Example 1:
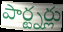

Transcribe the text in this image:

పార్ట్నర్లు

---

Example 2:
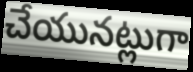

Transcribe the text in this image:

చేయునట్లుగా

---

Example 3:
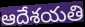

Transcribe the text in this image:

ఆదేశయతి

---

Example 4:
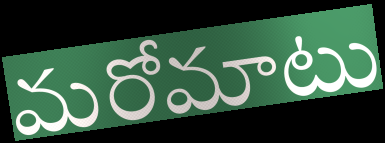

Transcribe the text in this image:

మరోమాటు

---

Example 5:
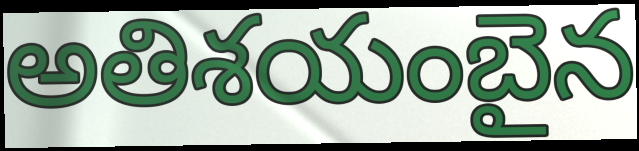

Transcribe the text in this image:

అతిశయంబైన